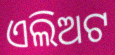
ଏଲିଅଟ